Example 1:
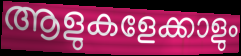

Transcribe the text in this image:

ആളുകളേക്കാളും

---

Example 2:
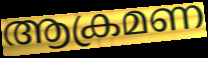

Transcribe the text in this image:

ആക്രമണ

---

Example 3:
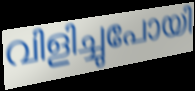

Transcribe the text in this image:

വിളിച്ചുപോയി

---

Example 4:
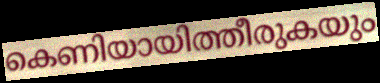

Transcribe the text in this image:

കെണിയായിത്തീരുകയും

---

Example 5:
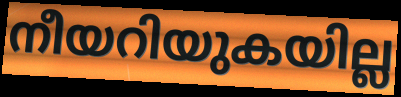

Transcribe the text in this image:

നീയറിയുകയില്ല